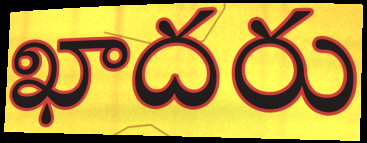
ఖాదరు